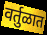
वर्तुळात